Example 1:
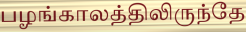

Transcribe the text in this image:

பழங்காலத்திலிருந்தே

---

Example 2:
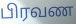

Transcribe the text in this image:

பிரவண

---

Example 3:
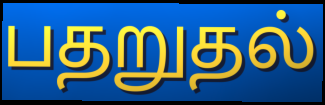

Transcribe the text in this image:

பதறுதல்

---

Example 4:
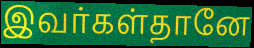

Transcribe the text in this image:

இவர்கள்தானே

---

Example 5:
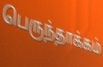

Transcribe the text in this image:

பெருந்தாக்கம்